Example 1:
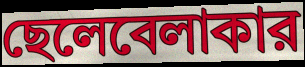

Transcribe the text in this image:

ছেলেবেলাকার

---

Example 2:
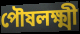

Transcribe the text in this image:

পৌষলক্ষ্মী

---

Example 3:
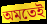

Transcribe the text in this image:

অমতেই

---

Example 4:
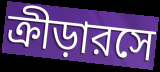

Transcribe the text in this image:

ক্রীড়ারসে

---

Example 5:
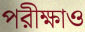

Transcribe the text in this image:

পরীক্ষাও